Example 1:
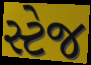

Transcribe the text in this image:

સ્ટેજ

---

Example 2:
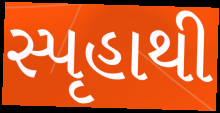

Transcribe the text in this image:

સ્પૃહાથી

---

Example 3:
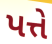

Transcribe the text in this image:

પત્તે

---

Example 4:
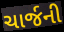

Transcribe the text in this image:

ચાર્જની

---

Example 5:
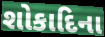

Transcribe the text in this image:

શોકાદિના